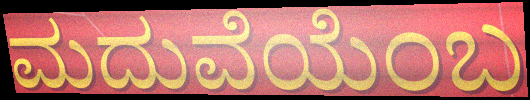
ಮದುವೆಯೆಂಬ